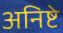
अनिष्टे